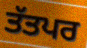
ਤੱਤਪਰ